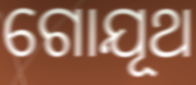
ଗୋଯୂଥ